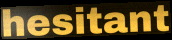
hesitant